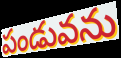
పండువను